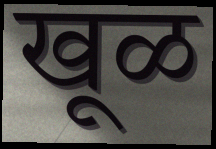
खूळ